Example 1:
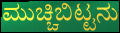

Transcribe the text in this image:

ಮುಚ್ಚಿಬಿಟ್ಟನು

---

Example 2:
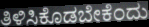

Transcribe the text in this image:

ತಿಳಿಸಿಕೊಡಬೇಕೆಂದು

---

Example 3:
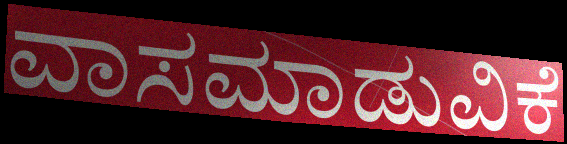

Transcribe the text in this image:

ವಾಸಮಾಡುವಿಕೆ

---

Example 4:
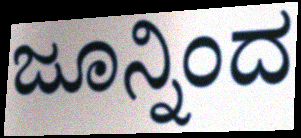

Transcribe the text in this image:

ಜೂನ್ನಿಂದ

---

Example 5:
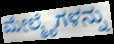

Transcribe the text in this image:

ಮೇಲ್ಮೈಗಳನ್ನು